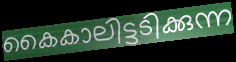
കൈകാലിട്ടടിക്കുന്ന